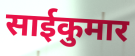
साईकुमार